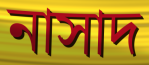
নাসাদ